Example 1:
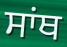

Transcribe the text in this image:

ਸਾਂਥ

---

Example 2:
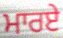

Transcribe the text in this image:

ਮਾਰਏ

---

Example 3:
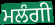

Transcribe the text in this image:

ਮਲੰਗੀ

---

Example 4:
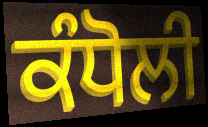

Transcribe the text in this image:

ਕੰਧੋਲੀ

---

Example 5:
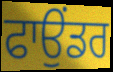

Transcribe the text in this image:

ਫਾਉਂਡਰ